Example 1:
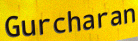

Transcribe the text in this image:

Gurcharan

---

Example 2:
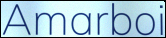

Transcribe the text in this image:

Amarboi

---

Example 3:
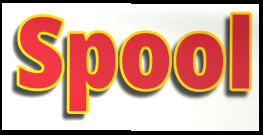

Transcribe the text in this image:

Spool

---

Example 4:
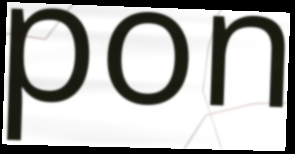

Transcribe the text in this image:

pon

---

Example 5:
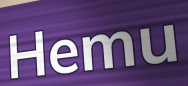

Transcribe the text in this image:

Hemu